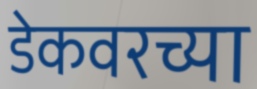
डेकवरच्या